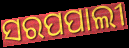
ସରପପାଲୀ